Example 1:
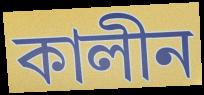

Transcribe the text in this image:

কালীন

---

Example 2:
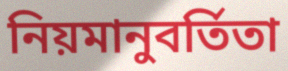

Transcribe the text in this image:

নিয়মানুবর্তিতা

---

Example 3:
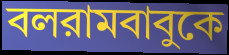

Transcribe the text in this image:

বলরামবাবুকে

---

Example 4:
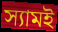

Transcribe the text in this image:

স্যামই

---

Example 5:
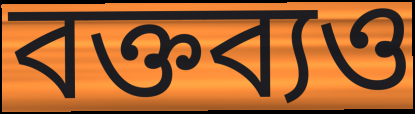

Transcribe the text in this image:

বক্তব্যও